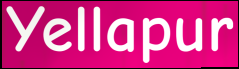
Yellapur